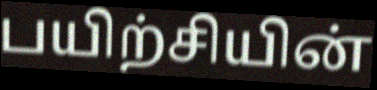
பயிற்சியின்